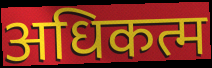
अधिकत्म